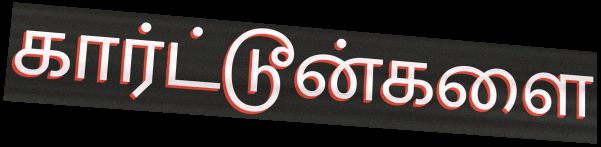
கார்ட்டூன்களை